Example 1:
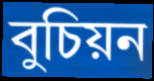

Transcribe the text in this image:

বুচিয়ন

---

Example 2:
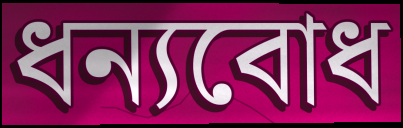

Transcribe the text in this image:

ধন্যবোধ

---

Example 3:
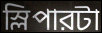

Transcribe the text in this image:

স্লিপারটা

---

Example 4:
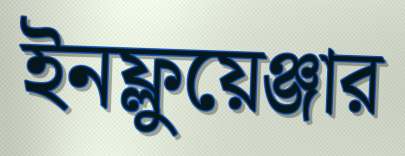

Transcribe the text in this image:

ইনফ্লুয়েঞ্জার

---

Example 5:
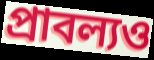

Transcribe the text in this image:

প্রাবল্যও